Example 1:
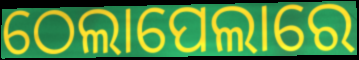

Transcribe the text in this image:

ଠେଲାପେଲାରେ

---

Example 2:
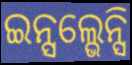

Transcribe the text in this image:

ଇନ୍ସଲ୍ଭେନ୍ସି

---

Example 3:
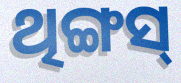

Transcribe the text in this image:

ଥିଙ୍ଗସ୍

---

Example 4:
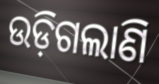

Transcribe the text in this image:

ଉଡ଼ିଗଲାଣି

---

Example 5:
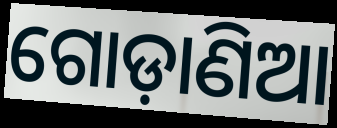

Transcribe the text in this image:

ଗୋଡ଼ାଣିଆ